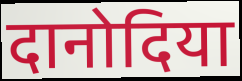
दानोदिया